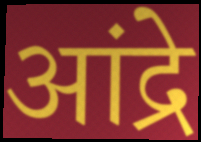
आंद्रे